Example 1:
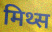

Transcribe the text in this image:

मिथ्स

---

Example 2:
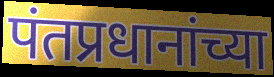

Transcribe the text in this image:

पंतप्रधानांच्या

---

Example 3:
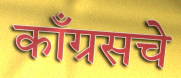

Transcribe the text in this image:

काँग्रसचे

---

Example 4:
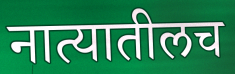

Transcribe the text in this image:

नात्यातीलच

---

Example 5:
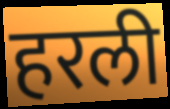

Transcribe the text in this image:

हरली